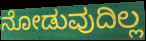
ನೋಡುವುದಿಲ್ಲ